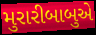
મુરારીબાબુએ